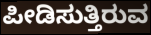
ಪೀಡಿಸುತ್ತಿರುವ